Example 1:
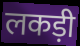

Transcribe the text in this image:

लकड़ी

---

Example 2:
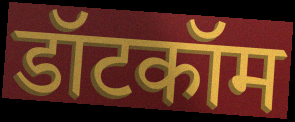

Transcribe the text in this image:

डॉटकॉम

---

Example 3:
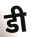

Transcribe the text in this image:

डी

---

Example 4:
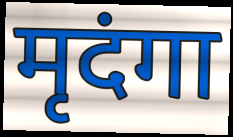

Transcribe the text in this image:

मृदंगा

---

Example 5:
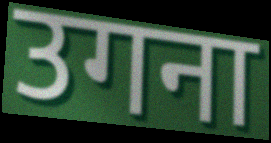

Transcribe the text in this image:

उगना